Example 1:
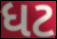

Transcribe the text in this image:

ધટ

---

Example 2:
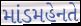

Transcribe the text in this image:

માંડમહેનતે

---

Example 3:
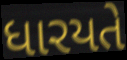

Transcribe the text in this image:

ધારયતે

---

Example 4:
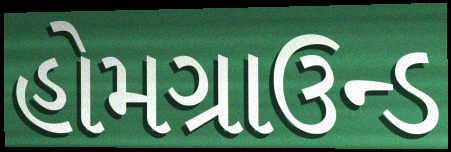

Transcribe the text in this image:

હોમગ્રાઉન્ડ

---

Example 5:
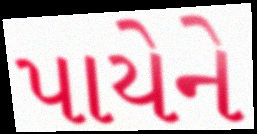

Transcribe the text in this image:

પાયેને